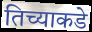
तिच्याकडे